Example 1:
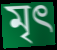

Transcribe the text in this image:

মৃৎ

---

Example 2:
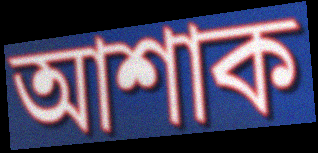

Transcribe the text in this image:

আশাক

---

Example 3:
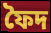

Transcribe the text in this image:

ফৈদ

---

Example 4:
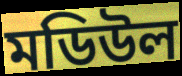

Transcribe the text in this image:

মডিউল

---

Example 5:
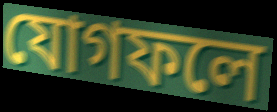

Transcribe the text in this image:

যোগফলে